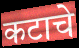
कटाचे